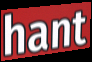
hant